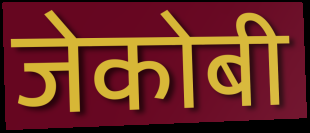
जेकोबी